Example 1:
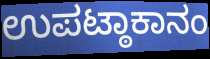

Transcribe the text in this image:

ಉಪಟ್ಠಾಕಾನಂ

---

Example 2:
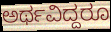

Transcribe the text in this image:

ಅರ್ಥವಿದ್ದರೂ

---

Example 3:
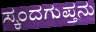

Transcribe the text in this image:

ಸ್ಕಂದಗುಪ್ತನು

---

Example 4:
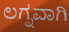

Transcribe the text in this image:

ಲಗ್ನವಾಗಿ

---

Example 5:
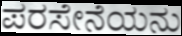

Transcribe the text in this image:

ಪರಸೇನೆಯನು